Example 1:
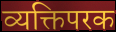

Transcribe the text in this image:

व्यक्तिपरक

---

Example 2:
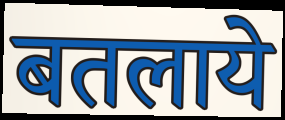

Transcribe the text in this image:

बतलाये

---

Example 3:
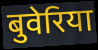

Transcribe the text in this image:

बुवेरिया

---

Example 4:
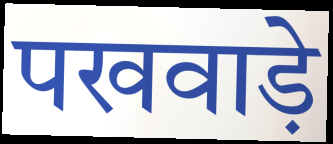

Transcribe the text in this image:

पखवाड़े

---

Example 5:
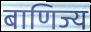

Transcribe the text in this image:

बाणिज्य